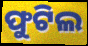
ଫୁଟିଲ